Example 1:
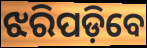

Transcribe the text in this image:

ଝରିପଡ଼ିବେ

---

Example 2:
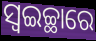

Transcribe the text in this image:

ସ୍ଵଇଚ୍ଛାରେ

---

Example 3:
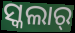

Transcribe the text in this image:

ସ୍କଲାର୍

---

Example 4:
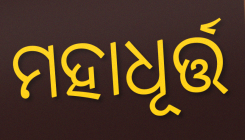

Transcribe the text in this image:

ମହାଧୂର୍ତ୍ତ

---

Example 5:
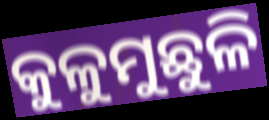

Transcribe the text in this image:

କୁଳୁମୁଛୁଳି